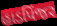
હાડપિંજર